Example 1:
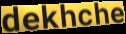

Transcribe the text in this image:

dekhche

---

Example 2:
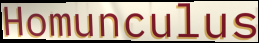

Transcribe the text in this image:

Homunculus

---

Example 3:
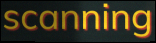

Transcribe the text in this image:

scanning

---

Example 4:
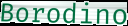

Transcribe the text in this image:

Borodino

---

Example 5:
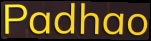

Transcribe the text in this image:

Padhao